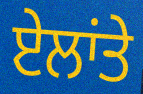
ਏਲਾਂਤੇ